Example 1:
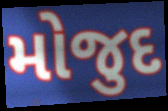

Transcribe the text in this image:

મોજુદ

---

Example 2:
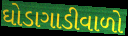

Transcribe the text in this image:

ઘોડાગાડીવાળો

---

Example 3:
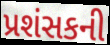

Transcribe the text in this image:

પ્રશંસકની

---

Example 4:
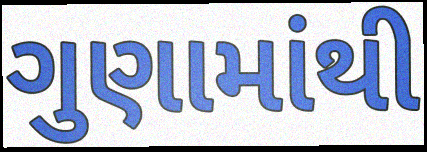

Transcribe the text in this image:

ગુણામાંથી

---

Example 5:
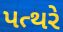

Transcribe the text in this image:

પત્થરે